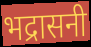
भद्रासनी